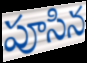
పూసిన